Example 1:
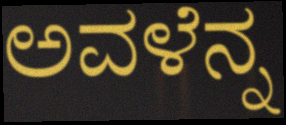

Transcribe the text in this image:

ಅವಳೆನ್ನ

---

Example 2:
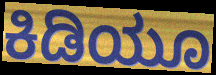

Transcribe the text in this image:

ಕಿಡಿಯೂ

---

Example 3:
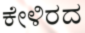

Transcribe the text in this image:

ಕೇಳಿರದ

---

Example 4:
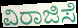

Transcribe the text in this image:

ವಿರಾಜಿಸೆ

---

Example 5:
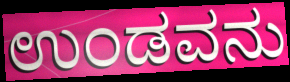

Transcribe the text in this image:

ಉಂಡವನು